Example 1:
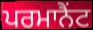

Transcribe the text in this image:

ਪਰਮਾਨੈਂਟ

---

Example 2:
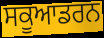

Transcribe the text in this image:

ਸਕੂਆਡਰਨ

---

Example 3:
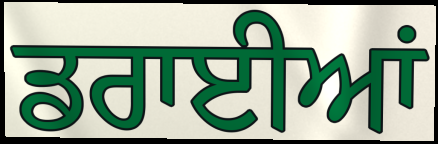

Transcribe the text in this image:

ਡਰਾਈਆਂ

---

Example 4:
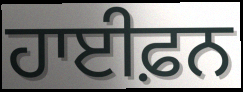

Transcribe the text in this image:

ਹਾਈਫ਼ਨ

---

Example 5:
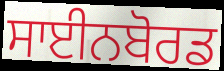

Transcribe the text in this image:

ਸਾਈਨਬੋਰਡ